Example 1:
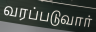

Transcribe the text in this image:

வரப்படுவார்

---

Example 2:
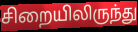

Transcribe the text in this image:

சிறையிலிருந்து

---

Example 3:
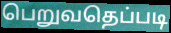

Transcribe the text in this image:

பெறுவதெப்படி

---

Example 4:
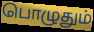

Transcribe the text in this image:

பொழுதும்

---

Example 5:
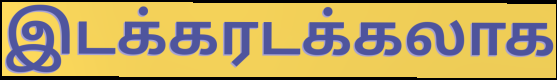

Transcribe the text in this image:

இடக்கரடக்கலாக